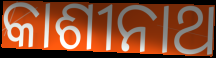
କାଶୀନାଥ